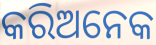
କରିଅନେକ